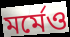
মর্মেও